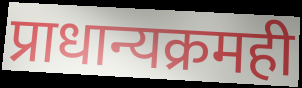
प्राधान्यक्रमही